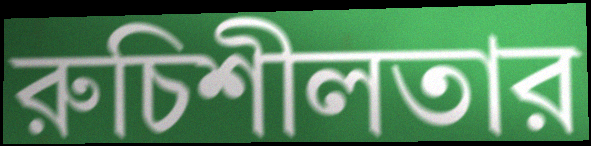
রুচিশীলতার